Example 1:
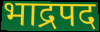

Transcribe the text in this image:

भाद्रपद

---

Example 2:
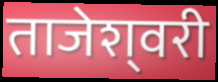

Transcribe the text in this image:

ताजेश्वरी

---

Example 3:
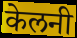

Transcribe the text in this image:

केलनी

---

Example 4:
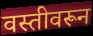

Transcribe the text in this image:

वस्तीवरून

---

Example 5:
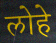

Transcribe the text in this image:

लोहे